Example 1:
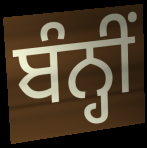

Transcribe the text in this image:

ਬੰਨ੍ਹੀਂ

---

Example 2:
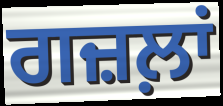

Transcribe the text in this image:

ਗਜ਼ਲ਼ਾਂ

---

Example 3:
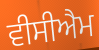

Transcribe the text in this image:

ਵੀਸੀਐਮ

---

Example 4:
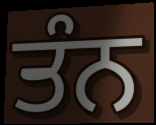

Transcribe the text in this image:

ਤੰਨ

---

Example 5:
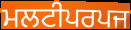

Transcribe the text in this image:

ਮਲਟੀਪਰਪਜ